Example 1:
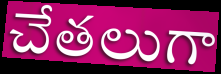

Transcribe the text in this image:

చేతలుగా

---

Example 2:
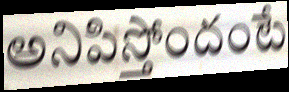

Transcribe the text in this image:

అనిపిస్తోందంటే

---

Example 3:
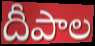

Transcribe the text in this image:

దీపాల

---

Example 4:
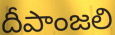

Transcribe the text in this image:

దీపాంజలి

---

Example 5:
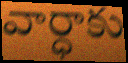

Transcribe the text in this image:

వార్ధాకు